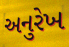
અનુરેખ